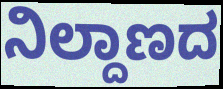
ನಿಲ್ದಾಣದ